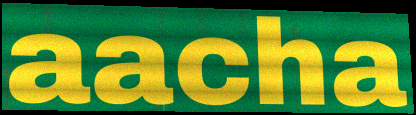
aacha